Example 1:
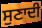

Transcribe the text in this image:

ਸੁਣਾਦੀ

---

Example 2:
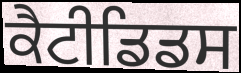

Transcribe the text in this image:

ਕੈਟੀਡਿਡਸ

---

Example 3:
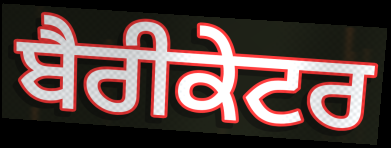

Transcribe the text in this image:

ਬੈਰੀਕੇਟਰ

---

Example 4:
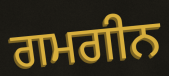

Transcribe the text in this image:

ਗਮਗੀਨ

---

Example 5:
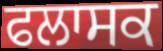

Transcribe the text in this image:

ਫਲਾਸਕ